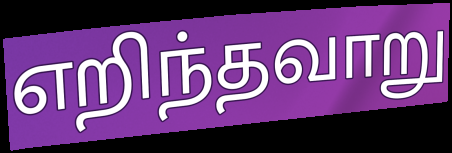
எறிந்தவாறு